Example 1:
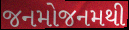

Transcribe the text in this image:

જનમોજનમથી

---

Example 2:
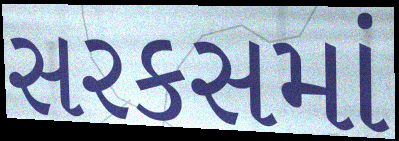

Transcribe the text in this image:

સરકસમાં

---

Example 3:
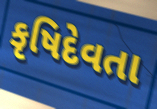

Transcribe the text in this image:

કૃષિદેવતા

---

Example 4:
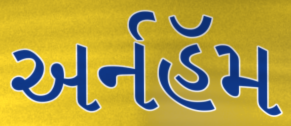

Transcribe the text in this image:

અર્નહૅમ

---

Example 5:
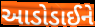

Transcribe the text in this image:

આડોડાઈને